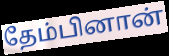
தேம்பினான்